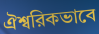
ঐশ্বরিকভাবে